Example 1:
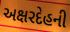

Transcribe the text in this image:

અક્ષરદેહની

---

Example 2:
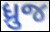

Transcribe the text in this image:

ધ્રુજ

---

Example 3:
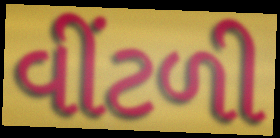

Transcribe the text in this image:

વીંટળી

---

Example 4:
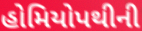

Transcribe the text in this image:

હોમિયોપથીની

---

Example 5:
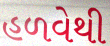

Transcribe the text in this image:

હળવેથી